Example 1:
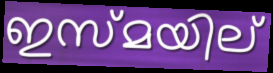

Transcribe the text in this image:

ഇസ്മയില്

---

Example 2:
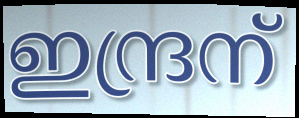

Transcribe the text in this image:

ഇന്ദ്രന്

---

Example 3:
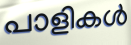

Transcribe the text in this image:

പാളികൾ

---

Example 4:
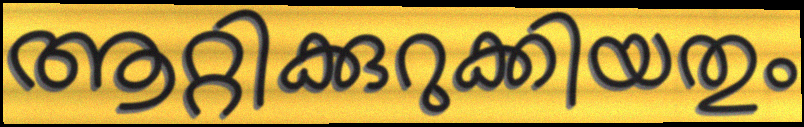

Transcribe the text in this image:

ആറ്റിക്കുറുക്കിയതും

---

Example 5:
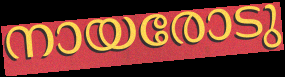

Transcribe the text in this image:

നായരോടു